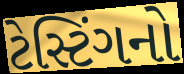
ટેસ્ટિંગનો